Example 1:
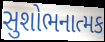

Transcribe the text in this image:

સુશોભનાત્મક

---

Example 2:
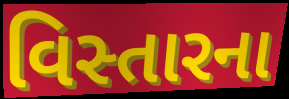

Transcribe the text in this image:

વિસ્તારના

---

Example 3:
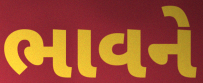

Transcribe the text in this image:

ભાવને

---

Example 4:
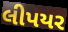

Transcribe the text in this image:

લીપયર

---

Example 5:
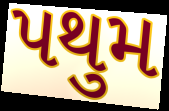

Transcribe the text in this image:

પથુમ